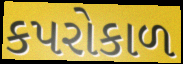
કપરોકાળ